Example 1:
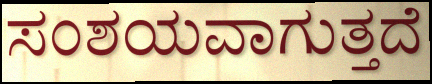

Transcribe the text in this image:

ಸಂಶಯವಾಗುತ್ತದೆ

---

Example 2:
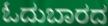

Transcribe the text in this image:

ಓದುಬಾರದ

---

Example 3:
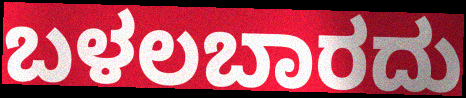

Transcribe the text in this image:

ಬಳಲಬಾರದು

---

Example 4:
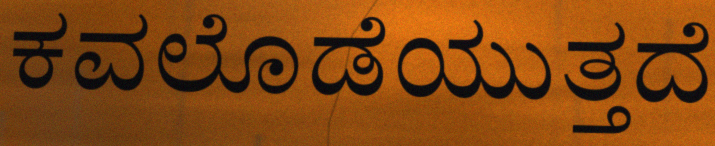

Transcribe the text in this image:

ಕವಲೊಡೆಯುತ್ತದೆ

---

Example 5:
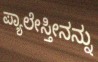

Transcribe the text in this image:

ಪ್ಯಾಲೇಸ್ತೀನನ್ನು